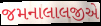
જમનાલાલજીએ